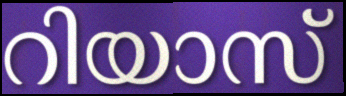
റിയാസ്